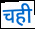
चही